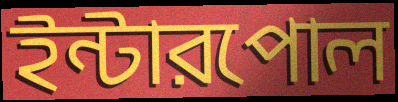
ইন্টারপোল